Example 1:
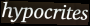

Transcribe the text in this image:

hypocrites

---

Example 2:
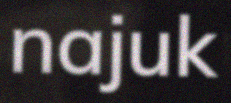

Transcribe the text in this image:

najuk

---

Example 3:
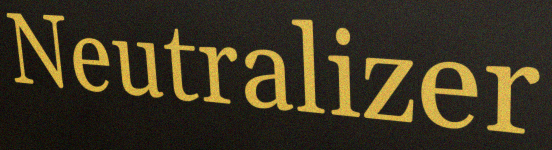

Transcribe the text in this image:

Neutralizer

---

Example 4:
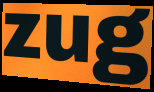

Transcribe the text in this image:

zug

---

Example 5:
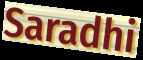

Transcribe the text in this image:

Saradhi